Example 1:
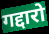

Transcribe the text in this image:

गद्दारो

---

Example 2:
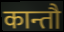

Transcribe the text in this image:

कान्तौ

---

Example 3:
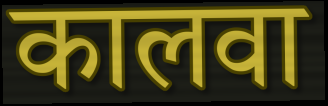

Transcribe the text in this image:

कालवा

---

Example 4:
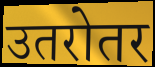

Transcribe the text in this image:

उतरोतर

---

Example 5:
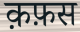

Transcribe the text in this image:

क़फ़स